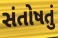
સંતોષતું